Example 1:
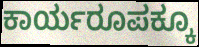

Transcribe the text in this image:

ಕಾರ್ಯರೂಪಕ್ಕೂ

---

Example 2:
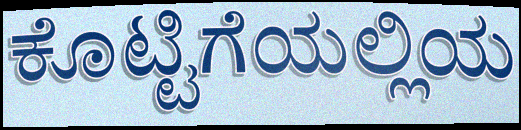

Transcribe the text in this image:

ಕೊಟ್ಟಿಗೆಯಲ್ಲಿಯ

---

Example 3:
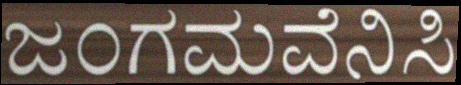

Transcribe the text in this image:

ಜಂಗಮವೆನಿಸಿ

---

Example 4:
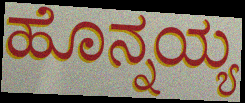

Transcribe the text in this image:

ಹೊನ್ನಯ್ಯ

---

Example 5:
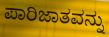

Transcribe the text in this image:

ಪಾರಿಜಾತವನ್ನು